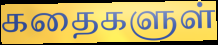
கதைகளுள்